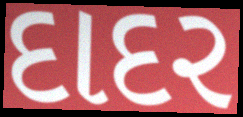
દાદર